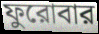
ফুরোবার